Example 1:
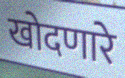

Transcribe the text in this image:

खोदणारे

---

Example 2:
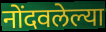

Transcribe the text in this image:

नोंदवलेल्या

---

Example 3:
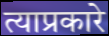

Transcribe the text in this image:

त्याप्रकारे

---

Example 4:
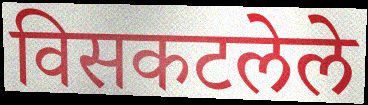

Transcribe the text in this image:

विसकटलेले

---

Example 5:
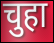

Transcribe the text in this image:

चुहा